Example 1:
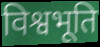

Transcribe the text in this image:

विश्वभूति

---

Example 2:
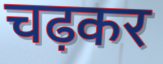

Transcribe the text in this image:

चढ़कर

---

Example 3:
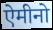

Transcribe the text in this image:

ऐमीनो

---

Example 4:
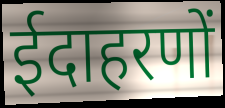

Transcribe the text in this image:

ईदाहरणों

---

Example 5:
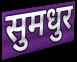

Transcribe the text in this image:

सुमधुर